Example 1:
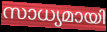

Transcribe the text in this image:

സാധ്യമായി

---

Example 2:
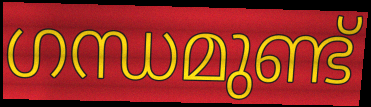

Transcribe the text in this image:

ഗന്ധമുണ്ട്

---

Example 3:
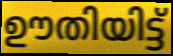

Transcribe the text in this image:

ഊതിയിട്ട്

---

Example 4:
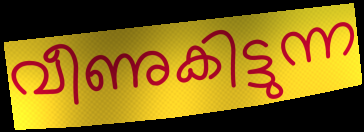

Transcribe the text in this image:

വീണുകിട്ടുന്ന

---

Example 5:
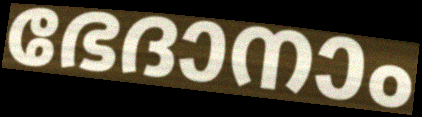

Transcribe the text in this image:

ഭേദാനാം